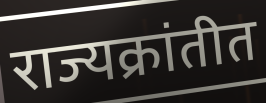
राज्यक्रांतीत